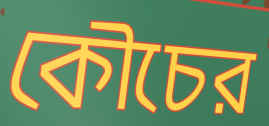
কৌচের